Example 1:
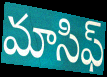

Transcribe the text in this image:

మాసిఫ్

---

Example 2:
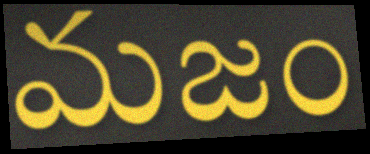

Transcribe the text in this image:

మజం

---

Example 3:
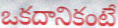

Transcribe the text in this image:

ఒకదానికంటే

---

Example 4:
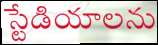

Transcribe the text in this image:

స్టేడియాలను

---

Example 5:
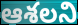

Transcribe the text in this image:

ఆశలని